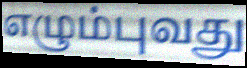
எழும்புவது